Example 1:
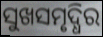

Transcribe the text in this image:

ସୁଖସମୃଦ୍ଧିର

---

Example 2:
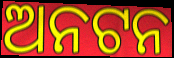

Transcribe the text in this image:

ଅନଟନ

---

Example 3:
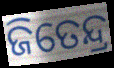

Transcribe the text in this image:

ଜିତେନ୍ଦ୍ର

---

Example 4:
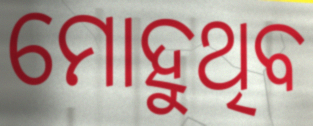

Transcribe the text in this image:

ମୋହୁଥିବ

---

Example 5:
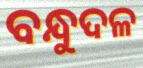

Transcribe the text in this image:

ବନ୍ଧୁଦଳ